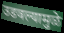
उडवल्यामुळे